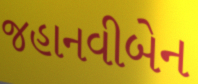
જહાનવીબેન